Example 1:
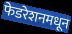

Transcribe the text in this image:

फेडरेशनमधून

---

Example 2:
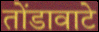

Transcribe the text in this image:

तोंडावाटे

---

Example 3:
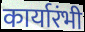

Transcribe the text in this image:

कार्यारंभी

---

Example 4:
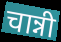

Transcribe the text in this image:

चान्नी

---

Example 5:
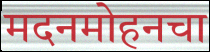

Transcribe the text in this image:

मदनमोहनचा